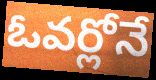
ఓవర్లోనే